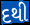
દથી